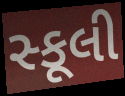
સ્કૂલી